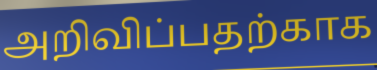
அறிவிப்பதற்காக